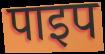
पाइप